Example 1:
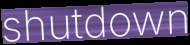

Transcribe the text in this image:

shutdown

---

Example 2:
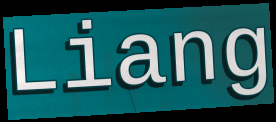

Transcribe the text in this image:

Liang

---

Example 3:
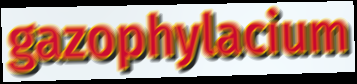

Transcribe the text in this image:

gazophylacium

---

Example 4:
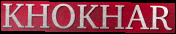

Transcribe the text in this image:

KHOKHAR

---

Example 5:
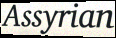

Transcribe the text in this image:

Assyrian